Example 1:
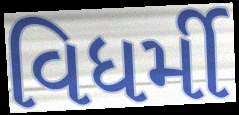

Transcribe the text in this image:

વિધર્મી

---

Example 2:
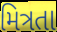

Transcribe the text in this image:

મિત્રતા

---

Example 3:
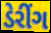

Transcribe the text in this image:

ડેરીંગ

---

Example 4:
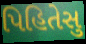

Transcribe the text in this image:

પિહિતેસુ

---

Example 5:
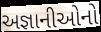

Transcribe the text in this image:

અજ્ઞાનીઓનો